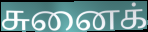
சுனைக்